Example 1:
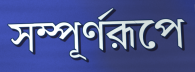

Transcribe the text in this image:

সম্পূর্ণরূপে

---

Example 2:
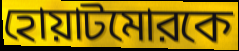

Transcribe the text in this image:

হোয়াটমোরকে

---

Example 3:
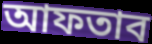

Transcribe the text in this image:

আফতাব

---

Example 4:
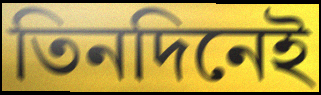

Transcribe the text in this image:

তিনদিনেই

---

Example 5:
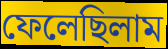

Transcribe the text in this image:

ফেলেছিলাম